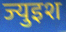
ज्युइश